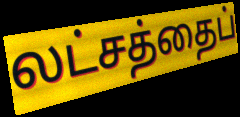
லட்சத்தைப்